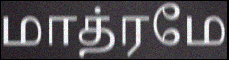
மாத்ரமே